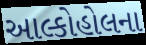
આલ્કોહોલના